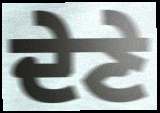
ਦੇਣੇ